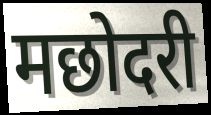
मछोदरी